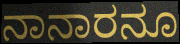
ನಾನಾರನೂ